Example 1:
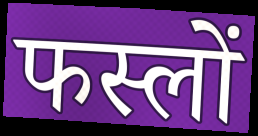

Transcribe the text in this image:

फस्लों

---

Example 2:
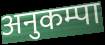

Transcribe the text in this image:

अनुकम्‍पा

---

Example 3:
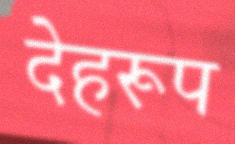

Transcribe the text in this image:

देहरूप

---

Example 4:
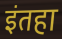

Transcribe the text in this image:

इंतहा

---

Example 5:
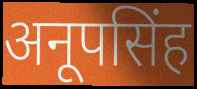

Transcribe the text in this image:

अनूपसिंह